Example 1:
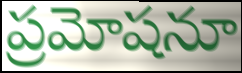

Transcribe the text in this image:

ప్రమోషనూ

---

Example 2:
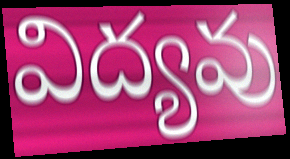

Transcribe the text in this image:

విద్యవు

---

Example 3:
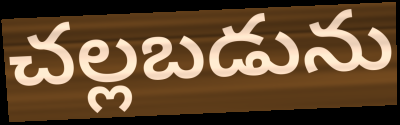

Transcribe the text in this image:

చల్లబడును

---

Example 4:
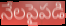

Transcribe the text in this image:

నేలపైపడి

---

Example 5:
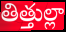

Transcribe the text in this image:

తిత్తుల్లా